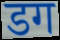
डग